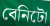
বেনিটো